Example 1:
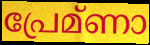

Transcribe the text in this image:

പ്രേമ്ണാ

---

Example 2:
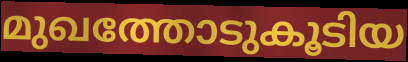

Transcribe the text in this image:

മുഖത്തോടുകൂടിയ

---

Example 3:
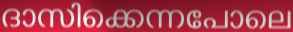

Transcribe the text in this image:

ദാസിക്കെന്നപോലെ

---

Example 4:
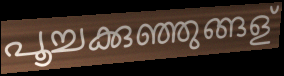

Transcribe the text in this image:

പൂച്ചക്കുഞ്ഞുങ്ങള്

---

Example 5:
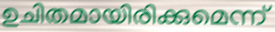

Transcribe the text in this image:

ഉചിതമായിരിക്കുമെന്ന്